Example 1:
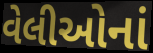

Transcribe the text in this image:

વેલીઓનાં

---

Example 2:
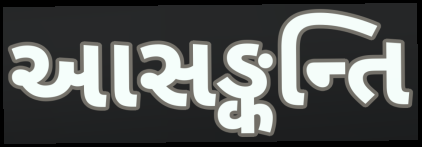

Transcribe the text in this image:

આસઙ્કન્તિ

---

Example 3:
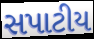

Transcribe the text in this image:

સપાટીય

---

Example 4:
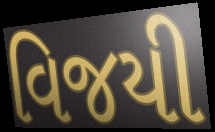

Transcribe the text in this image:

વિજયી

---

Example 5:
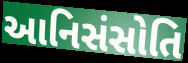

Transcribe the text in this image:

આનિસંસોતિ